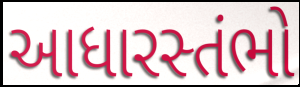
આધારસ્તંભો